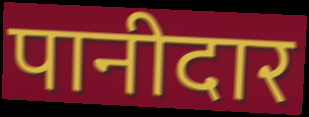
पानीदार